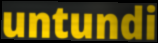
untundi